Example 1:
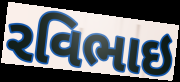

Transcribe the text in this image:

રવિભાઇ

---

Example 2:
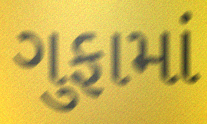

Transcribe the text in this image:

ગુફામાં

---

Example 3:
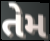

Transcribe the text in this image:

તેમ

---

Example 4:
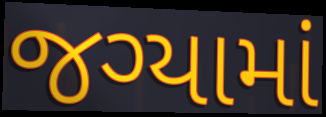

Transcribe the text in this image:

જગ્યામાં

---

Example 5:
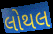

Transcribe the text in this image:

લોથલ